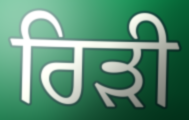
ਰਿੜੀ